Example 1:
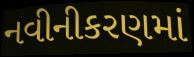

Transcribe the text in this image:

નવીનીકરણમાં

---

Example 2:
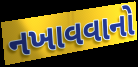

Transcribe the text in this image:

નખાવવાનો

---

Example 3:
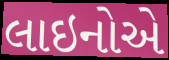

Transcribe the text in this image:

લાઇનોએ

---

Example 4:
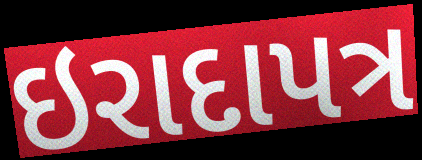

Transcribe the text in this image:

ઇરાદાપત્ર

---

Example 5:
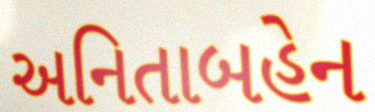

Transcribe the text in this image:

અનિતાબહેન